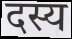
दस्य